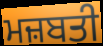
ਮਜ਼ਬਤੀ